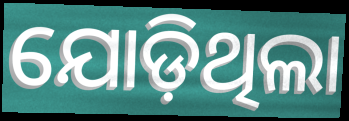
ଯୋଡ଼ିଥିଲା